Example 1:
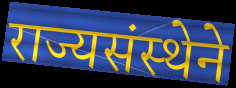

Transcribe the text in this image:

राज्यसंस्थेने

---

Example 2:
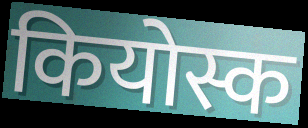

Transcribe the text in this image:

कियोस्क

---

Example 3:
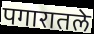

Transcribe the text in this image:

पगारातले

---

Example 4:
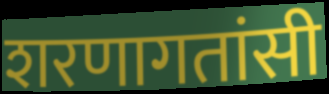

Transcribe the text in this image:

शरणागतांसी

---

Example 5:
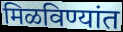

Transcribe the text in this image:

मिळविण्यांत